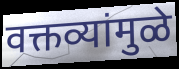
वक्तव्यांमुळे